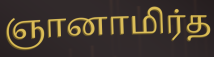
ஞானாமிர்த